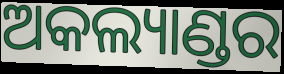
ଅକଲ୍ୟାଣ୍ଡର